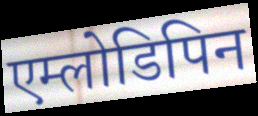
एम्लोडिपिन